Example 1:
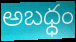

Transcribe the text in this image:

అబధ్ధం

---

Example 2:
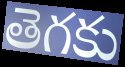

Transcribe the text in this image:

తెగకు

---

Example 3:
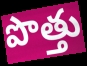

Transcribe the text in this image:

పొత్తు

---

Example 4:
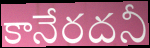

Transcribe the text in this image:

కానేరదనీ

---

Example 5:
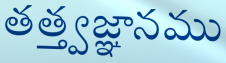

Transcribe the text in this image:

తత్త్వజ్ఞానము